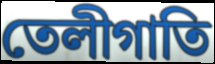
তেলীগাতি